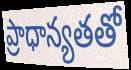
ప్రాధాన్యతతో